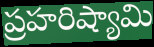
ప్రహరిష్యామి